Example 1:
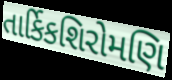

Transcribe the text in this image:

તાર્કિકશિરોમણિ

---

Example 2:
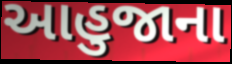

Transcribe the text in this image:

આહુજાના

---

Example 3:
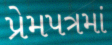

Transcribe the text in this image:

પ્રેમપત્રમાં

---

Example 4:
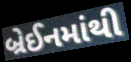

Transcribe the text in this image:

બ્રેઈનમાંથી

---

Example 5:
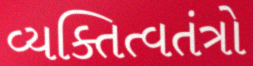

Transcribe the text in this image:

વ્યક્તિત્વતંત્રો